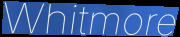
Whitmore